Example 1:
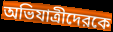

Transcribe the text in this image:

অভিযাত্রীদেরকে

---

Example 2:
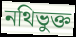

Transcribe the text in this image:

নথিভুক্ত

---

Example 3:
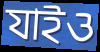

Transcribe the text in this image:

যাইও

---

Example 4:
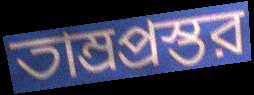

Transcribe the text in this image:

তাম্রপ্রস্তর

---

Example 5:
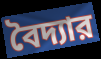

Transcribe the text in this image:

বৈদ্যার